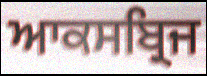
ਆਕਸਬ੍ਰਿਜ